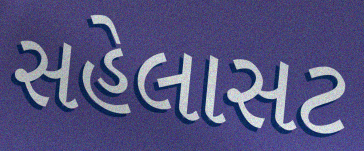
સહેલાસટ